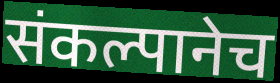
संकल्पानेच